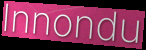
Innondu